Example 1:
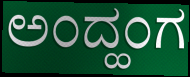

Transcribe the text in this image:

ಅಂದ್ಹಂಗ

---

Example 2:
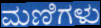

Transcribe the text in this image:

ಮಣಿಗಳು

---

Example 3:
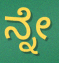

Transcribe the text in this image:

ನ್ನೇ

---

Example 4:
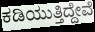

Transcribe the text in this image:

ಕಡಿಯುತ್ತಿದ್ದೇವೆ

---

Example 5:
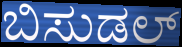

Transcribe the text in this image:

ಬಿಸುಡಲ್